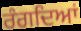
ਰੰਗਦਿਆਂ